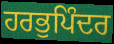
ਹਰਭੁਪਿੰਦਰ